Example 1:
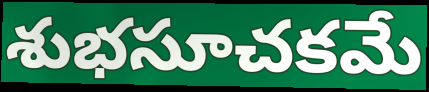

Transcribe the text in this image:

శుభసూచకమే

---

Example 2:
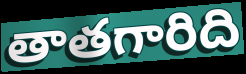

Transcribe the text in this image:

తాతగారిది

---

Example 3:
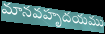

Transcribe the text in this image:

మానవహృదయము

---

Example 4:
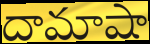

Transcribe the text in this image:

దామాషా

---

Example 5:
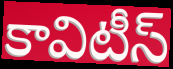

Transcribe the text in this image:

కావిటీస్